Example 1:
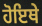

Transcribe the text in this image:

ਹੋਇਥੇ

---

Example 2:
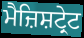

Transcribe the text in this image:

ਮੈਜ਼ਿਸ਼ਟ੍ਰੇਟ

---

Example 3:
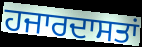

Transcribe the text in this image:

ਹਜਾਰਦਾਸਤਾਂ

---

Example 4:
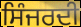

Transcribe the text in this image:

ਸਿੰਜਰਦੀ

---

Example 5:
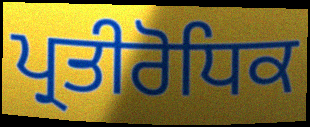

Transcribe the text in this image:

ਪ੍ਰਤੀਰੋਧਿਕ